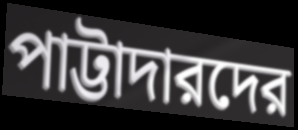
পাট্টাদারদের